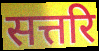
सत्तरि